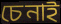
চেনাই